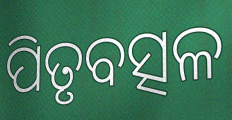
ପିତୃବତ୍ସଳ